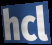
hcl